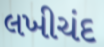
લખીચંદ